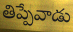
తిప్పేవాడు